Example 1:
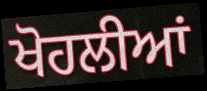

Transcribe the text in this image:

ਖੋਹਲੀਆਂ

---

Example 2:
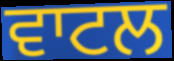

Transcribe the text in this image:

ਵਾਟਲ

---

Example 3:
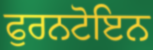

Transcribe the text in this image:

ਫੁਰਨਟੋਇਨ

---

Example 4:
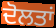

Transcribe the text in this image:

ਦੋਲਤਾਂ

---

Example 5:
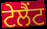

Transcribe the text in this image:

ਟੇਲੈਂਟ